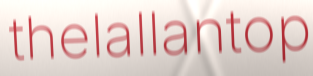
thelallantop